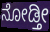
ನೋಡ್ತೀ